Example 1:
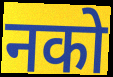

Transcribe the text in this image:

नको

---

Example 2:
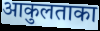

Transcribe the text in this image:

आकुलताका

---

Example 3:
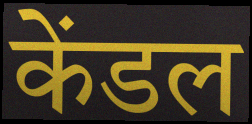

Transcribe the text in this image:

केंडल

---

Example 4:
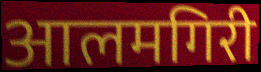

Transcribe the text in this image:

आलमगिरी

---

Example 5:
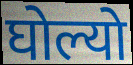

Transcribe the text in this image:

घोल्यो